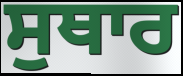
ਸੁਥਾਰ